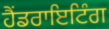
ਹੈਂਡਰਾਇਟਿੰਗ